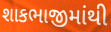
શાકભાજીમાંથી